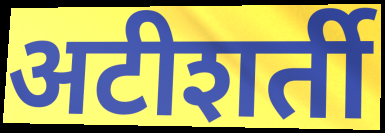
अटीशर्ती